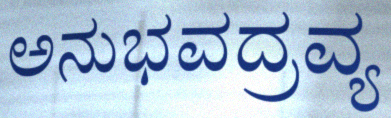
ಅನುಭವದ್ರವ್ಯ